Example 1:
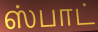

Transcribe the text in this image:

ஸ்பாட்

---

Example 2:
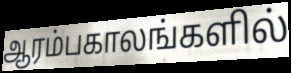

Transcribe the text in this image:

ஆரம்பகாலங்களில்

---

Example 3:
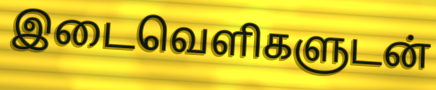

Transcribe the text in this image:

இடைவெளிகளுடன்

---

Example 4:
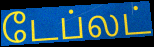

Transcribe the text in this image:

டேப்லட்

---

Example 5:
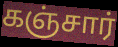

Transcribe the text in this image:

கஞ்சார்